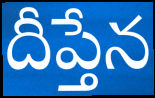
దీప్తేన